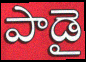
పాడై